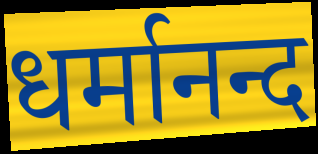
धर्मानन्द